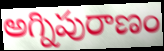
అగ్నిపురాణం